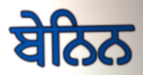
ਬੇਨਿਨ